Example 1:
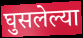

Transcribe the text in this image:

घुसलेल्या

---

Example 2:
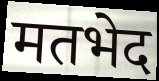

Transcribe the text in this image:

मतभेद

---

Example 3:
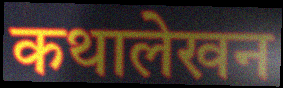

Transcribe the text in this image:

कथालेखन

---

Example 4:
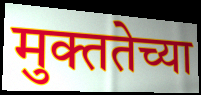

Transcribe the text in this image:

मुक्ततेच्या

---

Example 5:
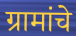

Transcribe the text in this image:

ग्रामांचे